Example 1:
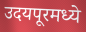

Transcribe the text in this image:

उदयपूरमध्ये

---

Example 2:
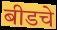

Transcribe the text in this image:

बीडचे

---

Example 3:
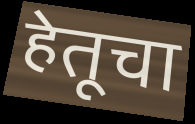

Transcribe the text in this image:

हेतूचा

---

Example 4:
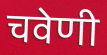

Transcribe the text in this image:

चवेणी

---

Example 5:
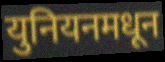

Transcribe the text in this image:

युनियनमधून